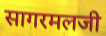
सागरमलजी